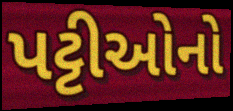
પટ્ટીઓનો